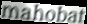
mahobat